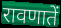
रावणातें